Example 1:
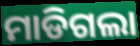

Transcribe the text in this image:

ମାଡିଗଲା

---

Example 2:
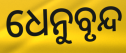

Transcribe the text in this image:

ଧେନୁବୃନ୍ଦ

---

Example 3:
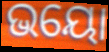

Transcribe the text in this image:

ଭୟୋ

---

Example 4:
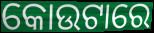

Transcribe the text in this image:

କୋଉଟାରେ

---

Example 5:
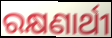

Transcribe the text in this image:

ରକ୍ଷଣାର୍ଥୀ